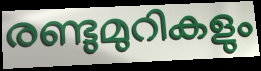
രണ്ടുമുറികളും